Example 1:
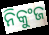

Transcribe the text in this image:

ନିକୁଂଜ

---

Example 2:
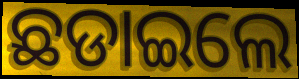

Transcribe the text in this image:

ଛଡାଇଲେ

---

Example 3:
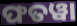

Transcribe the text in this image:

ଫତୱା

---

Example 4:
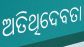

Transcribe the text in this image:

ଅତିଥିଦେବତା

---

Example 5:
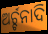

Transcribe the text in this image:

ଅର୍ଚ୍ଚନାଦି